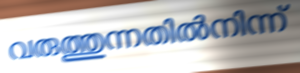
വരുത്തുന്നതിൽനിന്ന്